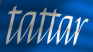
tattar